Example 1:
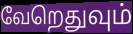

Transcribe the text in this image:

வேறெதுவும்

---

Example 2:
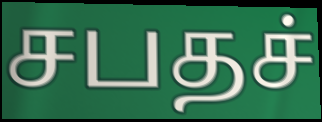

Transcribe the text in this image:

சபதச்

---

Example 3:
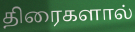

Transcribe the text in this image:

திரைகளால்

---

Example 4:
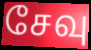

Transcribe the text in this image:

சேவு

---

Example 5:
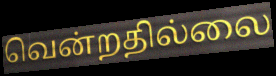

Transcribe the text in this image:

வென்றதில்லை